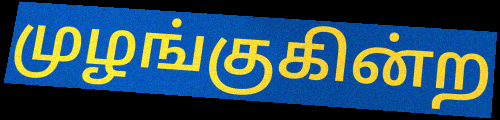
முழங்குகின்ற